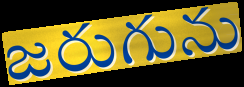
జరుగును